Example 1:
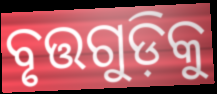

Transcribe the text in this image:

ବୃତ୍ତଗୁଡ଼ିକୁ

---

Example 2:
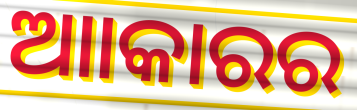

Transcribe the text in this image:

ଆାକାରର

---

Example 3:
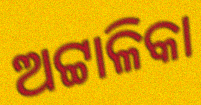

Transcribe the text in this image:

ଅଟ୍ଟାଳିକା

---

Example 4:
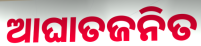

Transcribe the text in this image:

ଆଘାତଜନିତ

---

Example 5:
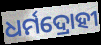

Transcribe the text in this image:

ଧର୍ମଦ୍ରୋହୀ